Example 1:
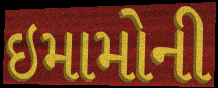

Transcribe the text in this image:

ઇમામોની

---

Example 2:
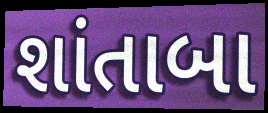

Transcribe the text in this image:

શાંતાબા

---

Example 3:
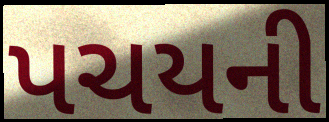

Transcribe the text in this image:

પચયની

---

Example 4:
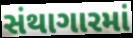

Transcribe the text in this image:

સંથાગારમાં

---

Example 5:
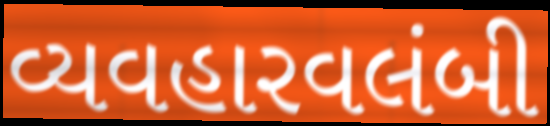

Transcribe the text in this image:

વ્યવહારવલંબી